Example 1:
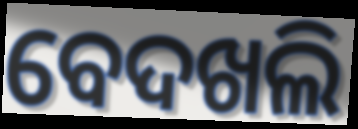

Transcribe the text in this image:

ବେଦଖଲି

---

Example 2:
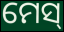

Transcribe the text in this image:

ମେସ୍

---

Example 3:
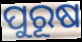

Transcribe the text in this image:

ପୁରୂଷ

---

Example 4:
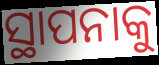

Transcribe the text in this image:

ସ୍ଥାପନାକୁ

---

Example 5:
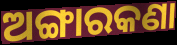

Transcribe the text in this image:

ଅଙ୍ଗାରକଣା